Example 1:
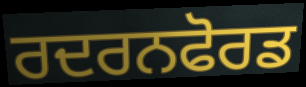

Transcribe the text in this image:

ਰਦਰਨਫੋਰਡ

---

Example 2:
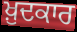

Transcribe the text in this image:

ਖ਼ੁਦਕਾਰ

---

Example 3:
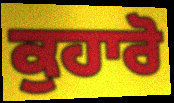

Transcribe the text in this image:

ਕੁਹਾਰੋ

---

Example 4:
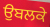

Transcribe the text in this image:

ਉਬਲਕੇ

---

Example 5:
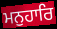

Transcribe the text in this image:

ਮਨੁਹਾਰਿ